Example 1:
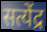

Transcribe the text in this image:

सत्येंद्र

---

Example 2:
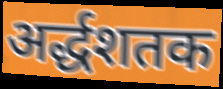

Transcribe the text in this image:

अर्द्धशतक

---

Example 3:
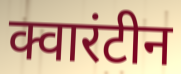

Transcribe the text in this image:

क्वारंटीन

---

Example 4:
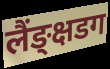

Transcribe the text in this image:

लैंङ्क्षडग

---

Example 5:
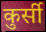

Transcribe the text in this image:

कुर्सी